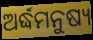
ଅର୍ଦ୍ଧମନୁଷ୍ୟ